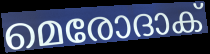
മെരോദാക്